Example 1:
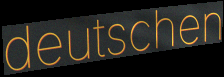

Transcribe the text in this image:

deutschen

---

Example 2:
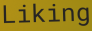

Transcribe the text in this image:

Liking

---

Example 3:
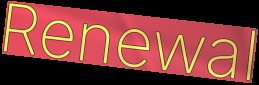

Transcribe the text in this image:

Renewal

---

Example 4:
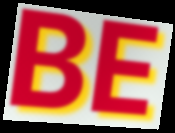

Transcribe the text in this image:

BE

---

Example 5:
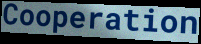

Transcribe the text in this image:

Cooperation